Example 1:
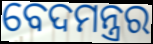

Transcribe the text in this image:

ବେଦମନ୍ତ୍ରର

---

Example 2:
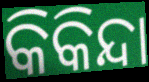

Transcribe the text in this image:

କିକିନ୍ଦା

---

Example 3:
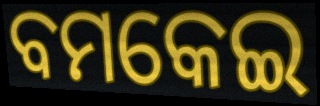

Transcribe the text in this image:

ବମକେଇ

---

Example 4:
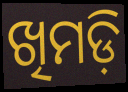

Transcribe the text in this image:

ଖିମଡ଼ି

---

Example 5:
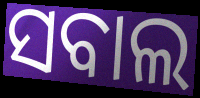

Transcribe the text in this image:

ସବାଲ